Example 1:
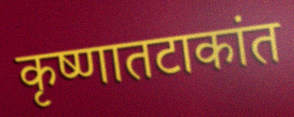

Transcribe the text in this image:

कृष्णातटाकांत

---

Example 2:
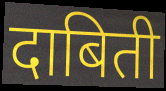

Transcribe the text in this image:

दाबिती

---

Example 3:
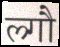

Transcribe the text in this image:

ल्गौ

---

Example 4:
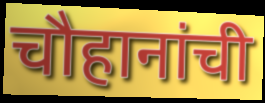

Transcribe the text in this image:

चौहानांची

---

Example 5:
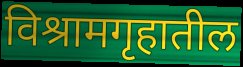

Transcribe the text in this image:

विश्रामगृहातील